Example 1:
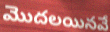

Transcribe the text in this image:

మొదలయినవే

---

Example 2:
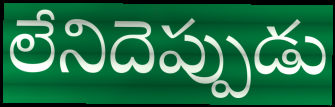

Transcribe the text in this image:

లేనిదెప్పుడు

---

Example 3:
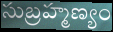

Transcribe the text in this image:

సుబ్రహ్మణ్యం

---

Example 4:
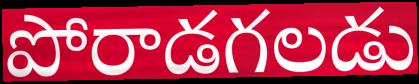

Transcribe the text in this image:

పోరాడగలడు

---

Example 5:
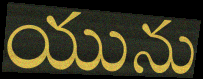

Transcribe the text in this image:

యును